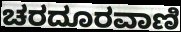
ಚರದೂರವಾಣಿ